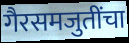
गैरसमजुतींचा